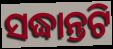
ସଦ୍ଧାନ୍ତଟି